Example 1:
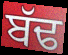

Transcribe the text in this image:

ਬੱਢ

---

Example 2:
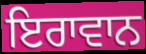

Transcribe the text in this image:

ਇਰਾਵਾਨ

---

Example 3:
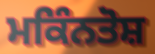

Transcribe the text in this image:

ਮਕਿੰਨਤੋਸ਼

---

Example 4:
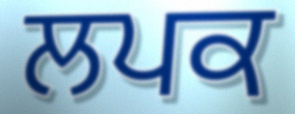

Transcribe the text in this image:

ਲਪਕ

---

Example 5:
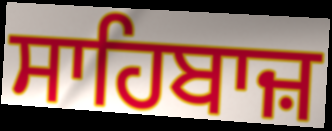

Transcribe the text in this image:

ਸਾਹਿਬਾਜ਼